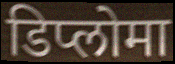
डिप्लोमा